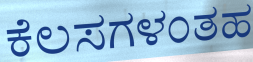
ಕೆಲಸಗಳಂತಹ